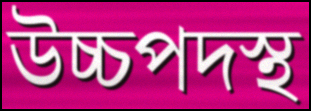
উচ্চপদস্থ